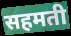
सहमती